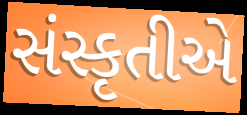
સંસ્કૃતીએ